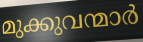
മുക്കുവന്മാർ